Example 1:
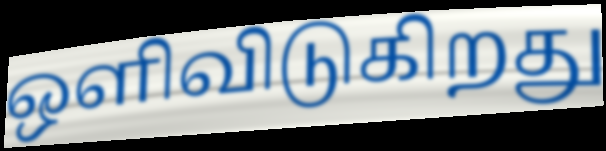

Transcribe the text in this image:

ஒளிவிடுகிறது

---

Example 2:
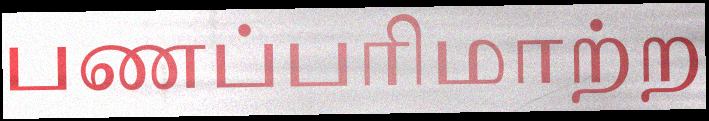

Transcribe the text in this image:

பணப்பரிமாற்ற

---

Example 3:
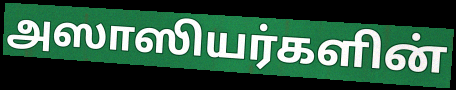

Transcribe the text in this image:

அஸாஸியர்களின்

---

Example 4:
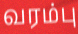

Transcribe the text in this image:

வரம்பு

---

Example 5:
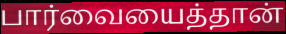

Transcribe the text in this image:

பார்வையைத்தான்